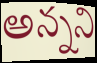
అన్నని